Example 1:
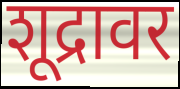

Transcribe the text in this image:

शूद्रावर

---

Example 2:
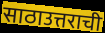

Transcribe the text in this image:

साठाउत्तराची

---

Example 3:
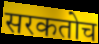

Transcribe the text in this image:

सरकतोच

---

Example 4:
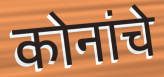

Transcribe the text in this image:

कोनांचे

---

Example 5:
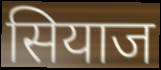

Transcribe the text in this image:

सियाज